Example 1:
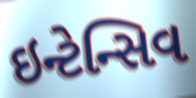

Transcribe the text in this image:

ઇન્ટેન્સિવ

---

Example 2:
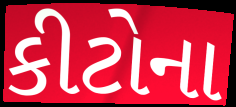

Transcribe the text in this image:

કીટોના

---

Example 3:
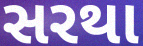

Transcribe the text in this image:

સરથા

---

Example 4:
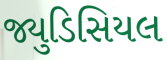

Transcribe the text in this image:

જ્યુડિસિયલ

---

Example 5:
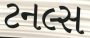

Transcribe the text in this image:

ટનલ્સ